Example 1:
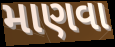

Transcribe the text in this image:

માણવા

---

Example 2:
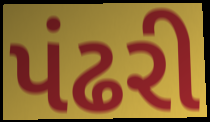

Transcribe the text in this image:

પંઢરી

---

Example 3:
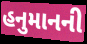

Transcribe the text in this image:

હનુમાનની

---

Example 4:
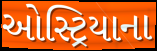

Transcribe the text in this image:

ઓસ્ટ્રિયાના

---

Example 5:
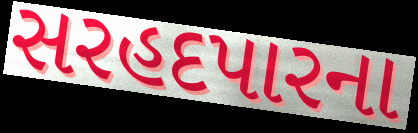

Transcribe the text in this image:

સરહદપારના